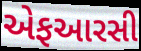
એફઆરસી